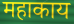
महाकाय